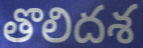
తొలిదశ